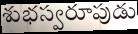
శుభస్వరూపుడు